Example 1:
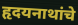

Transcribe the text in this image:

हृदयनाथांचे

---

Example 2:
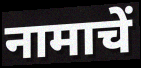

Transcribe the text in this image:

नामाचें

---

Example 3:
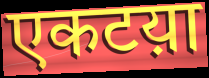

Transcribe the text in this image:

एकटय़ा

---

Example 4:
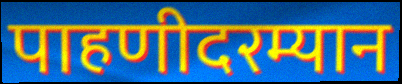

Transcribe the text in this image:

पाहणीदरम्यान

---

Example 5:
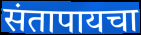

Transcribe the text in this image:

संतापायचा